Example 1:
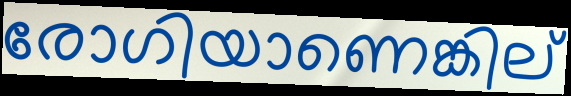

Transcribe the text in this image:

രോഗിയാണെങ്കില്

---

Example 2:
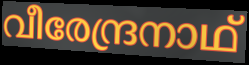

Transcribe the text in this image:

വീരേന്ദ്രനാഥ്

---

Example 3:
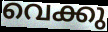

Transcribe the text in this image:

വെക്കു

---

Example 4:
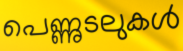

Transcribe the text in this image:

പെണ്ണുടലുകൾ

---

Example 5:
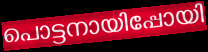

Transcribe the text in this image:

പൊട്ടനായിപ്പോയി